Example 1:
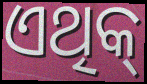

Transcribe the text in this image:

ଏଥିକ୍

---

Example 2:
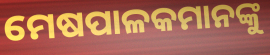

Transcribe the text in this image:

ମେଷପାଳକମାନଙ୍କୁ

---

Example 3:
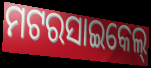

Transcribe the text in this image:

ମଟରସାଇକେଲ୍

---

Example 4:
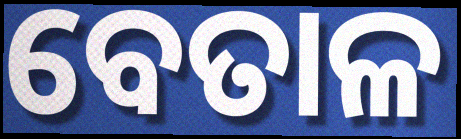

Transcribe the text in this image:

ବେତାଳ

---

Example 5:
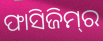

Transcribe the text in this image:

ଫାସିଜିମ୍‌ର